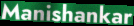
Manishankar